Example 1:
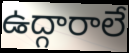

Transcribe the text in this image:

ఉద్గారాలే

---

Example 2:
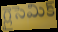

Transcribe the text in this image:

గ్లైసెమిక్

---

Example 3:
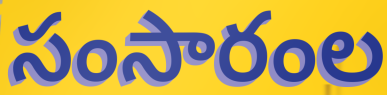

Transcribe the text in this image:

సంసారంల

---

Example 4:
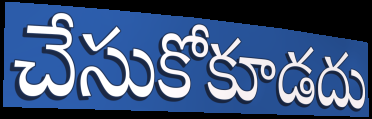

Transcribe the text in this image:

చేసుకోకూడదు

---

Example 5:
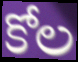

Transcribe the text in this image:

కోల